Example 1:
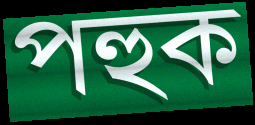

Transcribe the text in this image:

পহুক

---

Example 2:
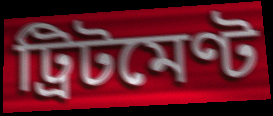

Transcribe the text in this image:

ট্ৰিটমেণ্ট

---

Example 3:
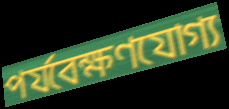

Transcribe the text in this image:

পৰ্যবেক্ষণযোগ্য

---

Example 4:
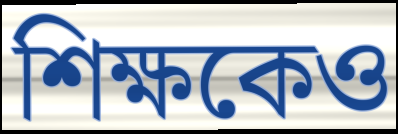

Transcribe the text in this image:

শিক্ষকেও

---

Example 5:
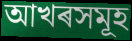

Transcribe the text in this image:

আখৰসমূহ